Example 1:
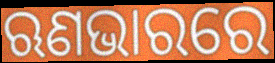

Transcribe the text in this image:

ଋଣଭାରରେ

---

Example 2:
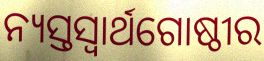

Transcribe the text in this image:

ନ୍ୟସ୍ତସ୍ୱାର୍ଥଗୋଷ୍ଠୀର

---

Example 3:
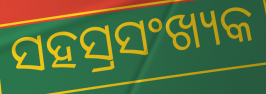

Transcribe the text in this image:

ସହସ୍ରସଂଖ୍ୟକ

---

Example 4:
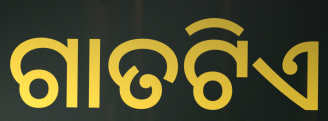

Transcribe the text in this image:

ଗାତଟିଏ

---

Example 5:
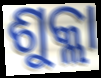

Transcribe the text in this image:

ଶୁକ୍ଲା